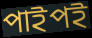
পাইপই